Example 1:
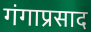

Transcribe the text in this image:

गंगाप्रसाद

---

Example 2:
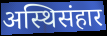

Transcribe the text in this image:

अस्थिसंहार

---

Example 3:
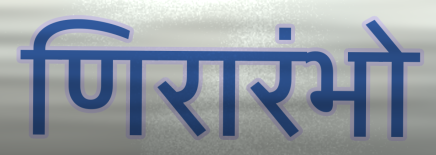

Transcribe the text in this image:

णिरारंभो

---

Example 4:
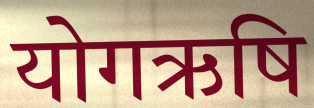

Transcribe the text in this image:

योगऋषि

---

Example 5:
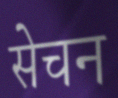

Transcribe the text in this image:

सेचन